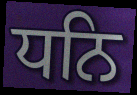
ਧਨਿ